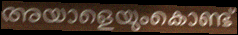
അയാളെയുംകൊണ്ട്